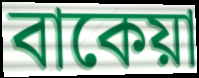
বাকেয়া